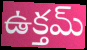
ఉక్తమ్